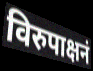
विरुपाक्षनं